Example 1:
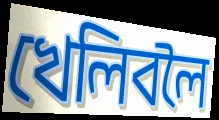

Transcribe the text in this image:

খেলিবলৈ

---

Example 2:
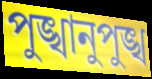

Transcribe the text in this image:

পুঙ্খানুপুঙ্খ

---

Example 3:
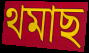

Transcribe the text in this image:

থমাছ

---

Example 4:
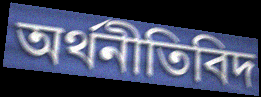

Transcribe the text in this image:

অৰ্থনীতিবিদ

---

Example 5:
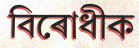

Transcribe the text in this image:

বিৰোধীক